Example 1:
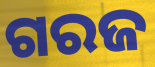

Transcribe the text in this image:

ଗରଜ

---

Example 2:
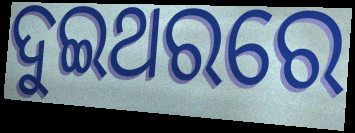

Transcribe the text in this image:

ଦୁଇଥରରେ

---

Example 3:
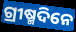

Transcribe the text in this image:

ଗ୍ରୀଷ୍ମଦିନେ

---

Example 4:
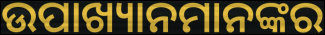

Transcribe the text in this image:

ଉପାଖ୍ୟାନମାନଙ୍କର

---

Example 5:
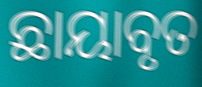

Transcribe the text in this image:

ଛାୟାବୃତ